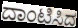
ದಾಂಟಿಸಿದ